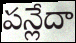
పన్లేదా